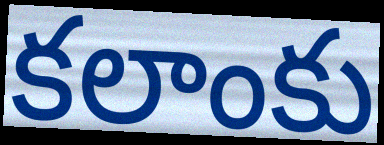
కలాంకు